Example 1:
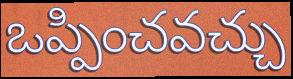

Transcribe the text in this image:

ఒప్పించవచ్చు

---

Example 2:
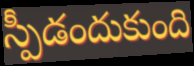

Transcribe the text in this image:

స్పీడందుకుంది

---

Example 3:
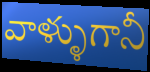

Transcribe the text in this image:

వాళ్ళుగానీ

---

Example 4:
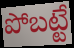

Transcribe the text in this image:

పోబట్టే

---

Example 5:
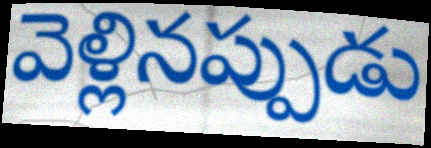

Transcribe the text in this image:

వెళ్లినప్పుడు